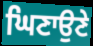
ਘਿਣਾਉਣੇ